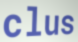
clus